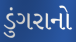
ડુંગરાનો